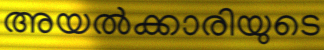
അയൽക്കാരിയുടെ